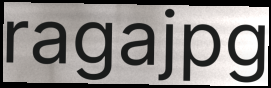
ragajpg